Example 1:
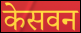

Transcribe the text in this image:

केसवन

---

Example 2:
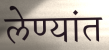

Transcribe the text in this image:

लेण्यांत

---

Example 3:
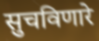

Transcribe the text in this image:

सुचविणारे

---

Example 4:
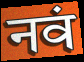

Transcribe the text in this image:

नवं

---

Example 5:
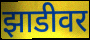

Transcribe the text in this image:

झाडीवर